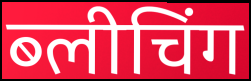
ब्‍लीचिंग